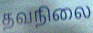
தவநிலை